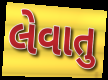
લેવાતુ